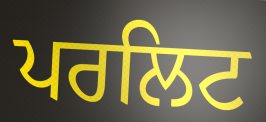
ਪਰਲਿਟ